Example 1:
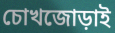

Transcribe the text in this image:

চোখজোড়াই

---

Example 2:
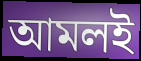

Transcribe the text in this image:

আমলই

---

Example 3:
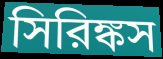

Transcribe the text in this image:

সিরিঙ্কস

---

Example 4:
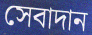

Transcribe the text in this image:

সেবাদান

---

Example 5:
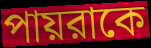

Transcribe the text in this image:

পায়রাকে